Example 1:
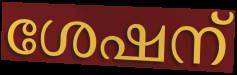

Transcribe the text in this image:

ശേഷന്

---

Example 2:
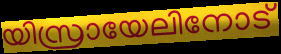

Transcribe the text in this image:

യിസ്രായേലിനോട്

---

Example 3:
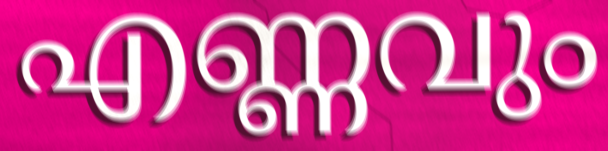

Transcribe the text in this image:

എണ്ണവും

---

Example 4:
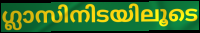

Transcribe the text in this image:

ഗ്ലാസിനിടയിലൂടെ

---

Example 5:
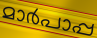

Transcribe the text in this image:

മാർപാപ്പ